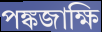
পঙ্কজাক্ষি